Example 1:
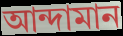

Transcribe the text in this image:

আন্দামান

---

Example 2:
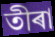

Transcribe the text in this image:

তীৰা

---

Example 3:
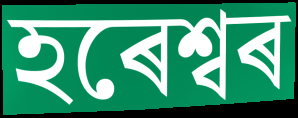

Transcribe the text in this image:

হৰেশ্বৰ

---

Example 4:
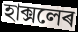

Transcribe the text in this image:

হাক্সলেৰ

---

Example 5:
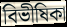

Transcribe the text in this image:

বিভীষিকা